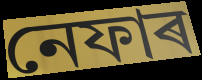
নেফাৰ